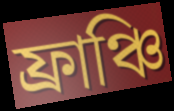
ফ্রাঞ্চি